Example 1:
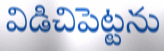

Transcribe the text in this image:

విడిచిపెట్టను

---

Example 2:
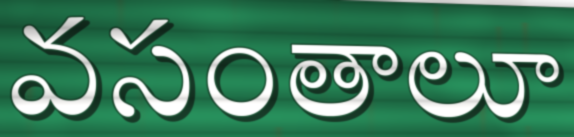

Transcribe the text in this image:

వసంతాలూ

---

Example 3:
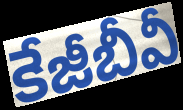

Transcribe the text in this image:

కేజీబీవీ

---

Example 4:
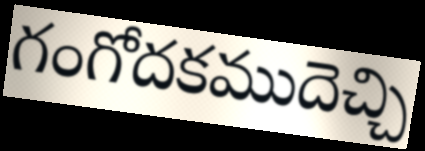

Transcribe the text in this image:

గంగోదకముదెచ్చి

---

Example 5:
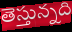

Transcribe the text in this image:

తెస్తున్నది